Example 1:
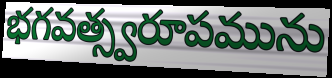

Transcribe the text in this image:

భగవత్స్వరూపమును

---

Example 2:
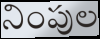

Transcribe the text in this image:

నింపుల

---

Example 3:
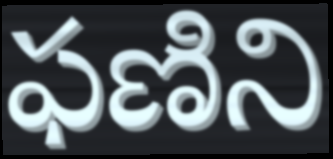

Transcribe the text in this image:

ఫణిని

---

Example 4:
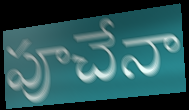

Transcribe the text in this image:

పూచేనా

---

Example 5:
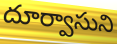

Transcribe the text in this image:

దూర్వాసుని